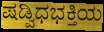
ಷಡ್ವಿಧಭಕ್ತಿಯ